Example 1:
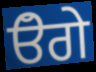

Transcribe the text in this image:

ੳੱਗੇ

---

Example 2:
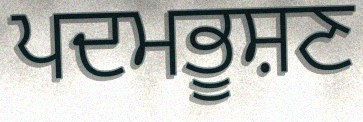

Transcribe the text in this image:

ਪਦਮਭੂਸ਼ਣ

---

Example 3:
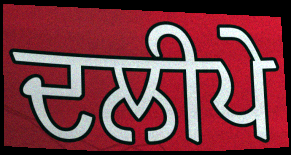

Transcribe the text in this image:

ਦਲੀਪੇ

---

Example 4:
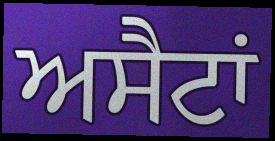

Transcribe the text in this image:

ਅਸੈਟਾਂ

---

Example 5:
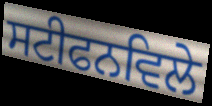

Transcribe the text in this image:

ਸਟੀਫਨਵਿਲੇ